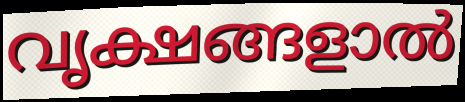
വൃക്ഷങ്ങളാൽ